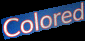
Colored